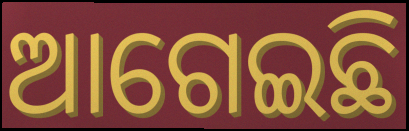
ଆଗେଇଛି